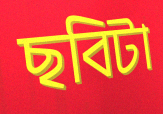
ছবিটা